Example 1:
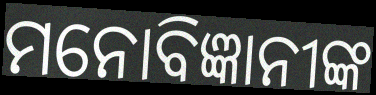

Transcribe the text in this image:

ମନୋବିଜ୍ଞାନୀଙ୍କ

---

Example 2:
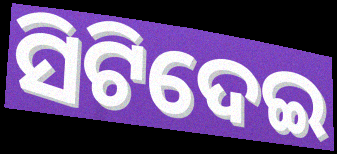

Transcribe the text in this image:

ସିଟିଦେଇ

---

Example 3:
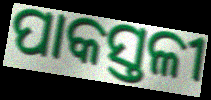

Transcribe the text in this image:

ପାକସ୍ତଳୀ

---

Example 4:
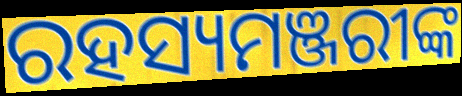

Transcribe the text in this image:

ରହସ୍ୟମଞ୍ଜରୀଙ୍କ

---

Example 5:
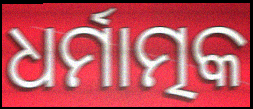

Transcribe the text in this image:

ଧର୍ମାତ୍ମକ